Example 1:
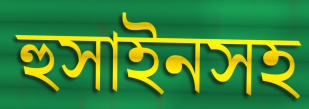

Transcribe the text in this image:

হুসাইনসহ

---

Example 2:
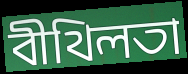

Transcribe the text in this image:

বীথিলতা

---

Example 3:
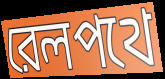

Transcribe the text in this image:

রেলপথে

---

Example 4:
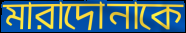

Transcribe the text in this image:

মারাদোনাকে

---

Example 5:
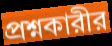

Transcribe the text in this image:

প্রশ্নকারীর